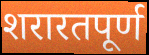
शरारतपूर्ण